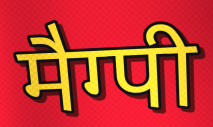
मैग्पी